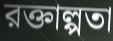
রক্তাল্পতা